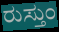
ರುಸ್ತುಂ